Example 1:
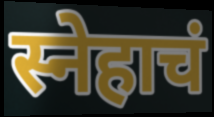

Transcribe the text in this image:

स्नेहाचं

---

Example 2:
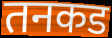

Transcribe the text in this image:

तनकड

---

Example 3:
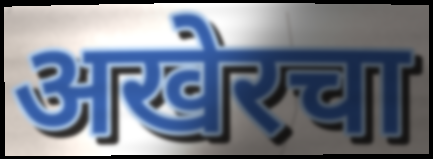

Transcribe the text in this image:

अखेरचा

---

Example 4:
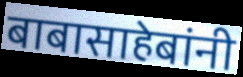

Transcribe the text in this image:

बाबासाहेबांनी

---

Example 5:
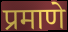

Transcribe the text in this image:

प्रमाणे